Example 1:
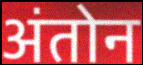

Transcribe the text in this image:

अंतोन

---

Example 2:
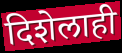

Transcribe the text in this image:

दिशेलाही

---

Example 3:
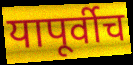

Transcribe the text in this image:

यापूर्वीच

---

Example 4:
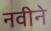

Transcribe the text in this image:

नवीने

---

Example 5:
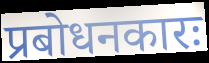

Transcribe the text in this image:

प्रबोधनकारः